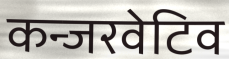
कन्जरवेटिव